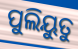
ପୁଲିୟୁତୁ